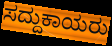
ಸದ್ದುಕಾಯರು